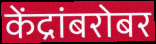
केंद्रांबरोबर